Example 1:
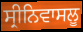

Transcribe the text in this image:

ਸ੍ਰੀਨਿਵਾਸਲੂ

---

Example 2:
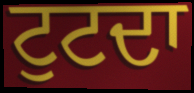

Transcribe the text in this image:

ਟੁਟਦਾ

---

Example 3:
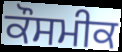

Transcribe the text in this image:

ਕੌਸਮੀਕ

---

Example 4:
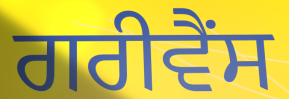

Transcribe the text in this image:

ਗਰੀਵੈਂਸ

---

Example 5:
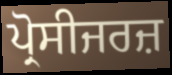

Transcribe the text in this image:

ਪ੍ਰੋਸੀਜਰਜ਼